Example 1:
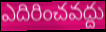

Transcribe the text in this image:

ఎదిరించవద్దు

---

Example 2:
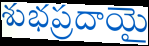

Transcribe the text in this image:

శుభప్రదాయై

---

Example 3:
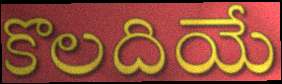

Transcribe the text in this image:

కొలదియే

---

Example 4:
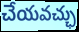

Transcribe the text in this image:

చేయవచ్ఛు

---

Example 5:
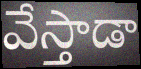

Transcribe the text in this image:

వేస్తాడా